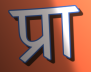
प्रा